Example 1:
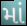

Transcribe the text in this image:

માં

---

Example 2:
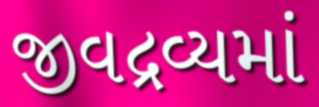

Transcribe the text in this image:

જીવદ્રવ્યમાં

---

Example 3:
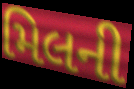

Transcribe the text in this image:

મિલની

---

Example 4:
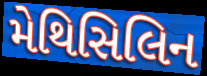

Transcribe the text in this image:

મેથિસિલિન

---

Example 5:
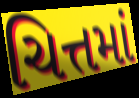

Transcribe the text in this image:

ચિત્તમાં